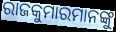
ରାଜକୁମାରମାନଙ୍କୁ